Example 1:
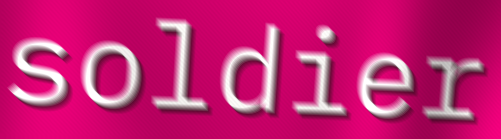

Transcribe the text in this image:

soldier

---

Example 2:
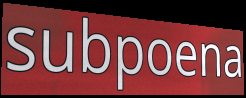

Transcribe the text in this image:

subpoena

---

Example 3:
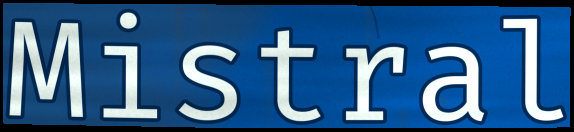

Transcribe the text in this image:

Mistral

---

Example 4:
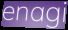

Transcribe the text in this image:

enagi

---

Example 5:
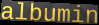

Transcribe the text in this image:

albumin